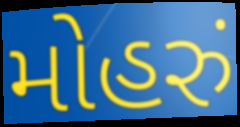
મોહરું